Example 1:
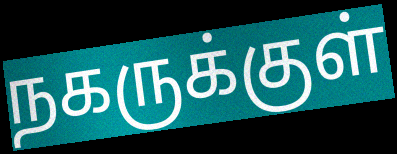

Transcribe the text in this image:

நகருக்குள்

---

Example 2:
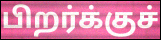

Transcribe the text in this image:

பிறர்க்குச்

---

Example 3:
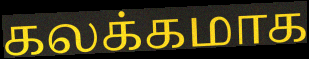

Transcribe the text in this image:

கலக்கமாக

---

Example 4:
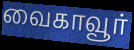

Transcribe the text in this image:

வைகாவூர்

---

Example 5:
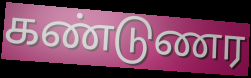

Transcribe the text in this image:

கண்டுணர